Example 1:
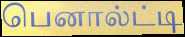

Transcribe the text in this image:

பெனால்ட்டி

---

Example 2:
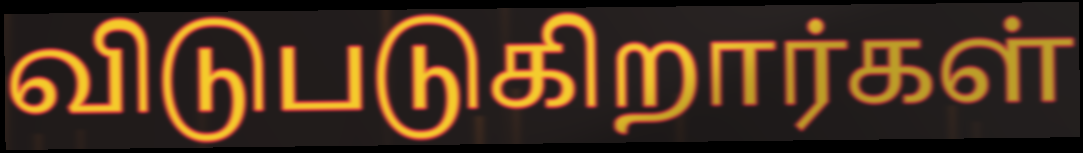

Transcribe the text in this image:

விடுபடுகிறார்கள்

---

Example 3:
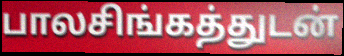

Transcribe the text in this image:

பாலசிங்கத்துடன்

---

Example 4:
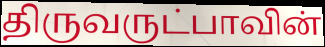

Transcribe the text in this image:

திருவருட்பாவின்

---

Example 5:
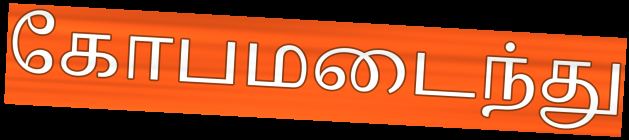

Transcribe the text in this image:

கோபமடைந்து